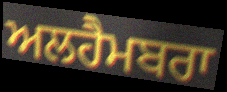
ਅਲਹੈਮਬਰਾ